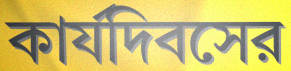
কার্যদিবসের